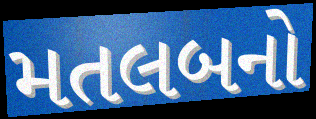
મતલબનો